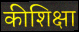
कीशिक्षा